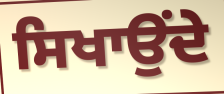
ਸਿਖਾਉਂਦੇ